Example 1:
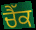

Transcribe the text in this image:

ਚੈੱਕ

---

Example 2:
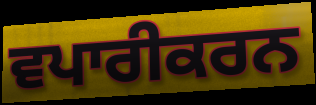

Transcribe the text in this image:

ਵਪਾਰੀਕਰਨ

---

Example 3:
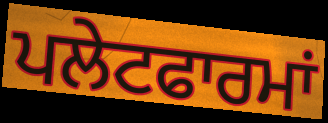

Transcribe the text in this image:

ਪਲੇਟਫਾਰਮਾਂ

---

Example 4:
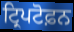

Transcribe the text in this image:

ਟ੍ਰਿਪਟੋਫ਼ਨ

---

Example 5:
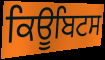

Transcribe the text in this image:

ਕਿਊਬਿਟਸ